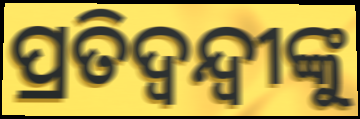
ପ୍ରତିଦ୍ଵନ୍ଦ୍ୱୀଙ୍କୁ